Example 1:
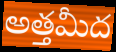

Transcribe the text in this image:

అత్తమీద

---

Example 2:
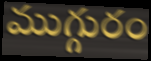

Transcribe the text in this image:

ముగ్గురం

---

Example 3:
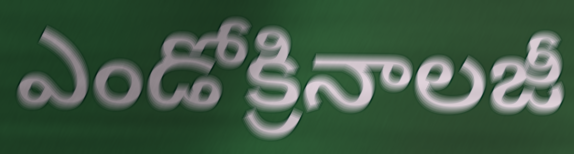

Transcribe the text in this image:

ఎండోక్రినాలజీ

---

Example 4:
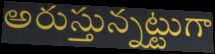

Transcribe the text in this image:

అరుస్తున్నట్టుగా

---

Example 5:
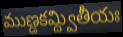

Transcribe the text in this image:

ముణ్డకమ్ద్వితీయః